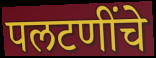
पलटणींचे